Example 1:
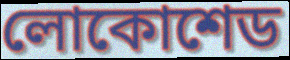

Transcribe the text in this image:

লোকোশেড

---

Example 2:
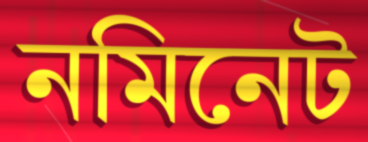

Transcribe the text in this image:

নমিনেট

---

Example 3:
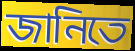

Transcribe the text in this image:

জানিতে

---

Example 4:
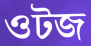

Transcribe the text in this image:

ওটজ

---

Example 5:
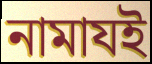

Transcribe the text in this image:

নামাযই